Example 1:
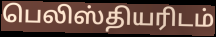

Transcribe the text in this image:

பெலிஸ்தியரிடம்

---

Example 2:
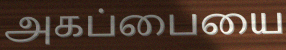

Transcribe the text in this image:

அகப்பையை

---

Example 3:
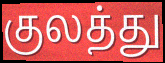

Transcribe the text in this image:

குலத்து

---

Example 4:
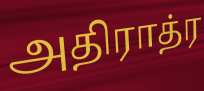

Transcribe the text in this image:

அதிராத்ர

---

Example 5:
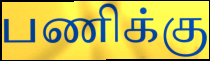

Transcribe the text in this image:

பணிக்கு